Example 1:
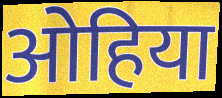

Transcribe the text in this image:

ओहिया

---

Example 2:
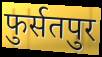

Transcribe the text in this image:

फुर्सतपुर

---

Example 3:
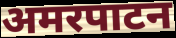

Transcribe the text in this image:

अमरपाटन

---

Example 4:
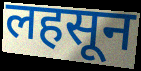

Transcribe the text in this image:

लहसून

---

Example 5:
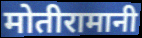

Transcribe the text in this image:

मोतीरामानी